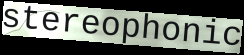
stereophonic